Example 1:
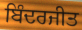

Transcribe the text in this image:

ਬਿੰਦਰਜੀਤ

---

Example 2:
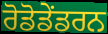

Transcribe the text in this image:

ਰੋਡੋਡੇਂਡਰਨ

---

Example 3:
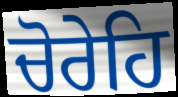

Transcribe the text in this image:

ਚੋਰੇਹਿ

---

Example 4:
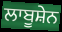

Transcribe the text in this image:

ਲਾਬੂਸ਼ੇਨ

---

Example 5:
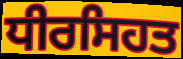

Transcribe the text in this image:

ਧੀਰਸਿਹਤ